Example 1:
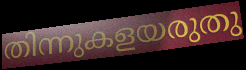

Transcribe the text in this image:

തിന്നുകളയരുതു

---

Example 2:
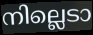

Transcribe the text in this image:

നില്ലെടാ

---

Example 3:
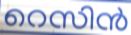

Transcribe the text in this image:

റെസിൻ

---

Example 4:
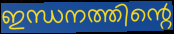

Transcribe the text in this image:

ഇന്ധനത്തിന്റെ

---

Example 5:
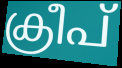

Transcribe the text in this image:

ക്രീപ്